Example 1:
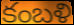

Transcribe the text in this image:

కంబళి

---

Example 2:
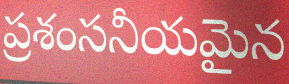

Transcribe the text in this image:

ప్రశంసనీయమైన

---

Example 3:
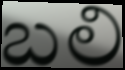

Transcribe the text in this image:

బలి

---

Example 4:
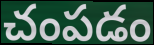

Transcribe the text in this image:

చంపడం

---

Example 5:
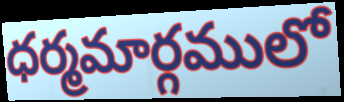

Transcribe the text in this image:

ధర్మమార్గములో